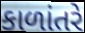
કાળાંતરે